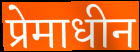
प्रेमाधीन